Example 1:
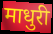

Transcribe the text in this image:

माधुरी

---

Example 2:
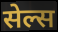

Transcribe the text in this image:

सेल्स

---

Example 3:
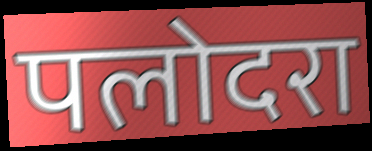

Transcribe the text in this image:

पलोदरा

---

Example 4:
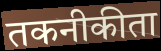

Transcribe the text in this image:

तकनीकीता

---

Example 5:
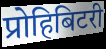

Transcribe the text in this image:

प्रोहिबिटरी